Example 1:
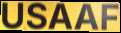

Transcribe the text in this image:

USAAF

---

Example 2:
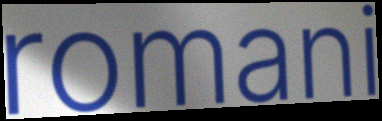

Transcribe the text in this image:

romani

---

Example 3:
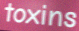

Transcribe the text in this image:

toxins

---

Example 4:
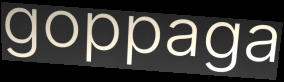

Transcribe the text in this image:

goppaga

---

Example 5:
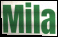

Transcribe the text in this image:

Mila